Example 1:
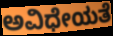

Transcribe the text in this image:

ಅವಿಧೇಯತೆ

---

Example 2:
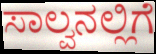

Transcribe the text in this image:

ಸಾಲ್ವನಲ್ಲಿಗೆ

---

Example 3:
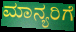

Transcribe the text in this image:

ಮಾನ್ಯರಿಗೆ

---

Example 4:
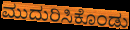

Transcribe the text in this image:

ಮುದುರಿಸಿಕೊಂಡು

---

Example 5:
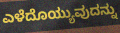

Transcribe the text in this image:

ಎಳೆದೊಯ್ಯುವುದನ್ನು